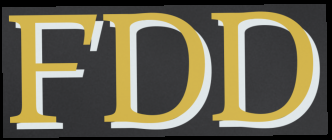
FDD